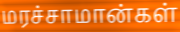
மரச்சாமான்கள்